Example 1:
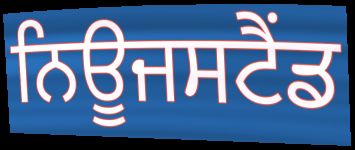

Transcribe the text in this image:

ਨਿਊਜਸਟੈਂਡ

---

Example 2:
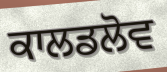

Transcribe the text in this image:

ਕਾਲਡਲੋਵ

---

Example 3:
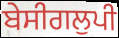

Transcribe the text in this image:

ਬੇਸੀਗਲੁਪੀ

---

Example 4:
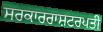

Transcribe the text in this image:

ਸਰਕਾਰਰਾਸ਼ਟਰਪਤੀ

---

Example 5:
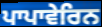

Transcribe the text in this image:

ਪਾਪਾਵੇਰਿਨ